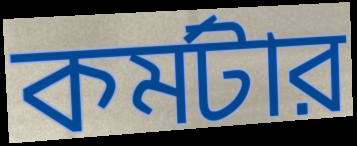
কর্মটার